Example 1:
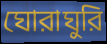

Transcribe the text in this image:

ঘোরাঘুরি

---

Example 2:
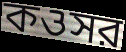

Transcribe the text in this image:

কওসর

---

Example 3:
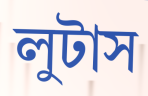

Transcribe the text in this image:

লুটাস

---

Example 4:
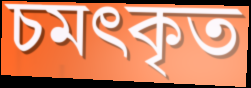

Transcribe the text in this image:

চমৎকৃত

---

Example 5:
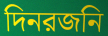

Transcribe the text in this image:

দিনরজনি